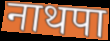
नाथपा